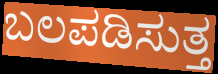
ಬಲಪಡಿಸುತ್ತ